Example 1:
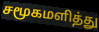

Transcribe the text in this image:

சமூகமளித்து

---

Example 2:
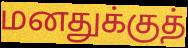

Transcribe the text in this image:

மனதுக்குத்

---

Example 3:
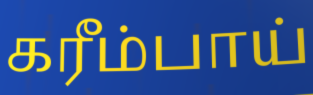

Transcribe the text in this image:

கரீம்பாய்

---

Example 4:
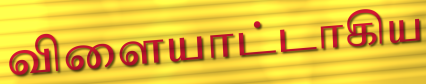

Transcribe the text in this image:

விளையாட்டாகிய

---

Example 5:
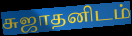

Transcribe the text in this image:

சுஜாதனிடம்